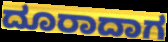
ದೂರಾದಾಗ